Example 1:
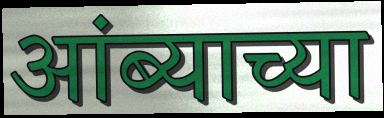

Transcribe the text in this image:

आंब्याच्या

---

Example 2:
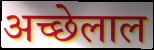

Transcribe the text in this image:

अच्छेलाल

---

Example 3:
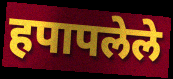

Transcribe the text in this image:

हपापलेले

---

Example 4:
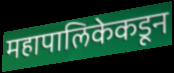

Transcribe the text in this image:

महापालिकेकडून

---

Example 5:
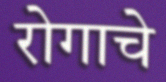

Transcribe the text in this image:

रोगाचे